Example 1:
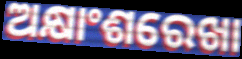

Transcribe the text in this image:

ଅକ୍ଷାଂଶରେଖା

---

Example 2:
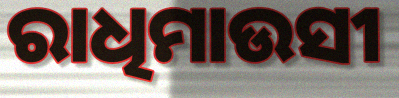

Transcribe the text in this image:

ରାଧିମାଉସୀ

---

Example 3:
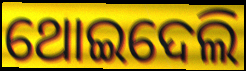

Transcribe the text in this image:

ଥୋଇଦେଲି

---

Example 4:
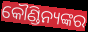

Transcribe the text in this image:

କୌଣ୍ଡିନ୍ୟଙ୍କର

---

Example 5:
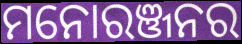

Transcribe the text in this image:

ମନୋରଞ୍ଜନର